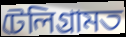
টেলিগ্ৰামত